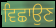
ਵਿਛਾਉਣ